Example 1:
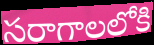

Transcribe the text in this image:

సరాగాలలోకి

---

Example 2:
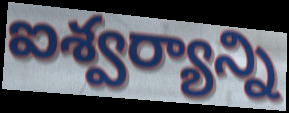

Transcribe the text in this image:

ఐశ్వర్యాన్ని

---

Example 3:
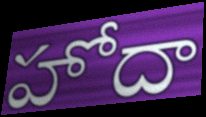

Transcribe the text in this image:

హోదా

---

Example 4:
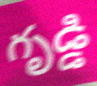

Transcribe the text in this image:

గృడ్డి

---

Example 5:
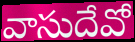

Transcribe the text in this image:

వాసుదేవో